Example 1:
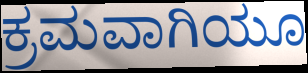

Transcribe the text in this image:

ಕ್ರಮವಾಗಿಯೂ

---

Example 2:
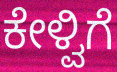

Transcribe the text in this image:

ಕೇಳ್ವಿಗೆ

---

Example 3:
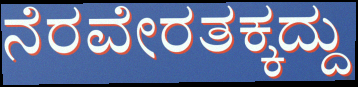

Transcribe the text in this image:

ನೆರವೇರತಕ್ಕದ್ದು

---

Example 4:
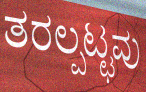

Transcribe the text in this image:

ತರಲ್ಪಟ್ಟವು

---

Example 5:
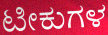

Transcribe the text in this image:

ಟೀಕುಗಳ